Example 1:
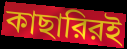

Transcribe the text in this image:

কাছারিরই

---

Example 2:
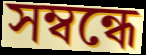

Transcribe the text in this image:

সম্বন্ধে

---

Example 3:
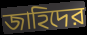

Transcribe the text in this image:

জাহিদের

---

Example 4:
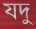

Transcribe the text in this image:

যদু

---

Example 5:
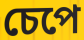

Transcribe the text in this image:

চেপে